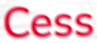
Cess